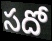
సదో